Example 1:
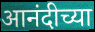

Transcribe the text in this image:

आनंदीच्या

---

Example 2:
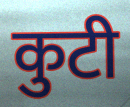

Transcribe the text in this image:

कुटी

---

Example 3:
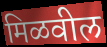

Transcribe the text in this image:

मिळवील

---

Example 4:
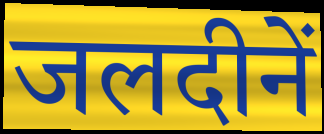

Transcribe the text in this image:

जलदीनें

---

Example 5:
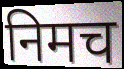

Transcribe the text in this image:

निमच